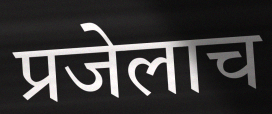
प्रजेलाच